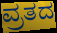
ವ್ರತದ